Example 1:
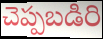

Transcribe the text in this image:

చెప్పబడిరి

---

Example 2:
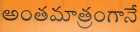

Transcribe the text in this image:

అంతమాత్రంగానే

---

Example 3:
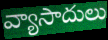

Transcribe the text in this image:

వ్యాసాదులు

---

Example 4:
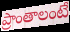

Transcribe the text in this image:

ప్రాంతాలంటే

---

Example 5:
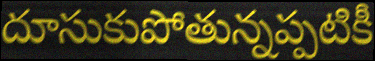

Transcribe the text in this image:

దూసుకుపోతున్నప్పటికీ